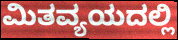
ಮಿತವ್ಯಯದಲ್ಲಿ